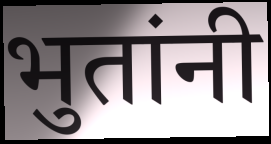
भुतांनी